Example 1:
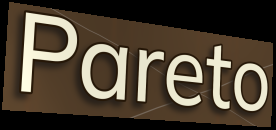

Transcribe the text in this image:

Pareto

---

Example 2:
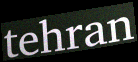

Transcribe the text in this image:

tehran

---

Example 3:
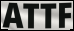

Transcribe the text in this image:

ATTF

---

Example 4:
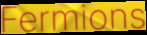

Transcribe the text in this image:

Fermions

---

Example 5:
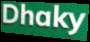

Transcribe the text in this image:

Dhaky